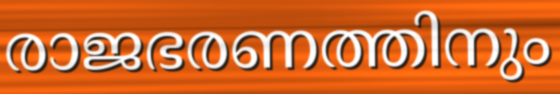
രാജഭരണത്തിനും